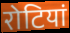
रोटियां